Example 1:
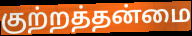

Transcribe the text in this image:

குற்றத்தன்மை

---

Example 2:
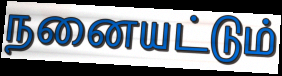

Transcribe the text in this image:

நனையட்டும்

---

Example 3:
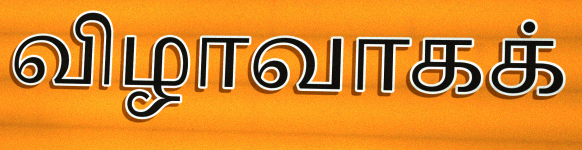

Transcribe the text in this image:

விழாவாகக்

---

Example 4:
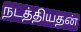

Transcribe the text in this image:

நடத்தியதன்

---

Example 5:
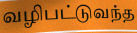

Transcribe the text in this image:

வழிபட்டுவந்த